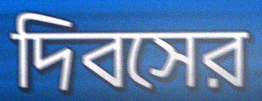
দিবসের